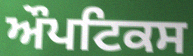
ਔਪਟਿਕਸ